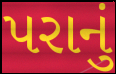
પરાનું